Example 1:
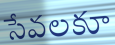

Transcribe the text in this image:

సేవలకూ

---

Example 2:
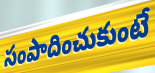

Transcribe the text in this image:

సంపాదించుకుంటే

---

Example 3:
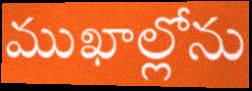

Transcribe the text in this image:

ముఖాల్లోను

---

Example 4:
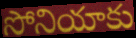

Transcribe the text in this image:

సోనియాకు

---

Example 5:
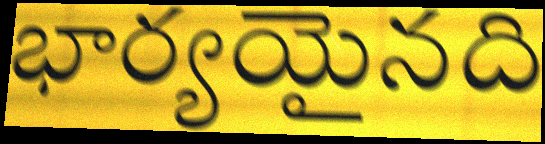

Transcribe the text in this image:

భార్యయైనది